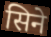
सिने